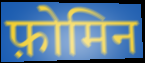
फ़ोमिन